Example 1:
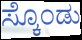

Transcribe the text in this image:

ಸ್ಕೊಂಡು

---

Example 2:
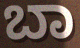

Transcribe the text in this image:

ಬಾ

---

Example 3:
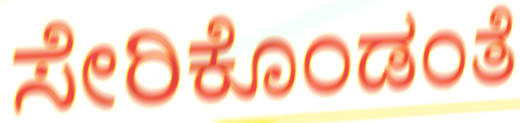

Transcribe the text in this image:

ಸೇರಿಕೊಂಡಂತೆ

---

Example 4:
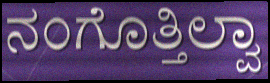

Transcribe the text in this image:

ನಂಗೊತ್ತಿಲ್ವಾ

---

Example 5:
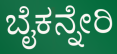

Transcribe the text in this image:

ಬೈಕನ್ನೇರಿ